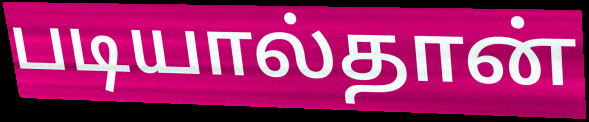
படியால்தான்